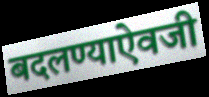
बदलण्याऐवजी